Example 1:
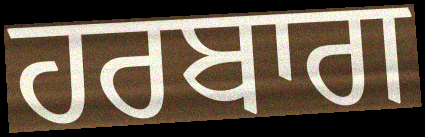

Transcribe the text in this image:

ਹਰਬਾਗ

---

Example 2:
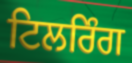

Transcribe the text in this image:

ਟਿਲਰਿੰਗ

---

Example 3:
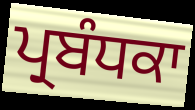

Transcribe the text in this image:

ਪ੍ਰਬੰਧਕਾ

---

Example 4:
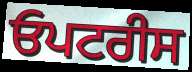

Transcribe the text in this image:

ਓਪਟਰੀਸ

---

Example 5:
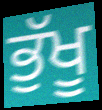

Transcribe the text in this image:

ਭੁੱਖੂ